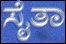
ಸೈತಾ